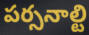
పర్సనాల్టి